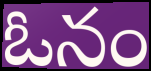
ఓనం